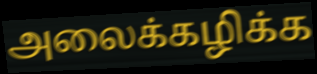
அலைக்கழிக்க